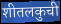
शीतलकुची